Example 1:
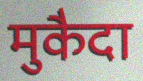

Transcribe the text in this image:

मुकैदा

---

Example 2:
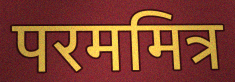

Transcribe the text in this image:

परममित्र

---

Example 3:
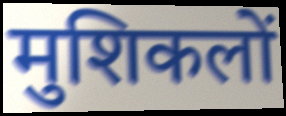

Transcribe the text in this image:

मुशिकलों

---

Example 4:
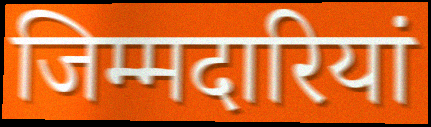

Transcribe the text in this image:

जिम्मदारियां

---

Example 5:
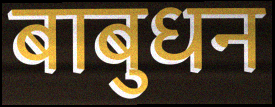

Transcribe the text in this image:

बाबुधन